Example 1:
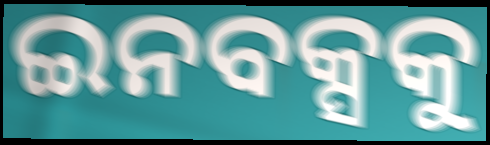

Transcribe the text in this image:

ଇନବକ୍ସକୁ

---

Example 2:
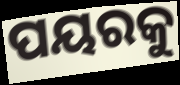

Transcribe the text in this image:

ପୟରକୁ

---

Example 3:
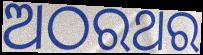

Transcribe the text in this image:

ଅଠରଥର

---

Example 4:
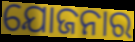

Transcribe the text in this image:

ଯୋଜନାର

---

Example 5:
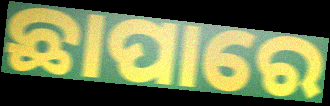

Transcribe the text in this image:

ଛାପାରେ